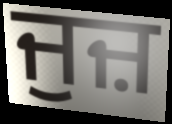
ਜੁਜ਼